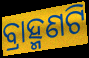
ବ୍ରାହ୍ମଣଟି